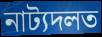
নাট্যদলত